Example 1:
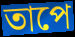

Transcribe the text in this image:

তাপে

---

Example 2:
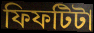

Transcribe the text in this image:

ফিফটিটা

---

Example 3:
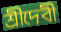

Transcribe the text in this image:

শ্রীদেবী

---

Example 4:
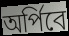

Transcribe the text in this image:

অর্পিবে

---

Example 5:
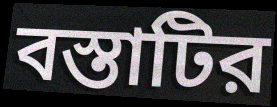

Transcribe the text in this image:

বস্তাটির